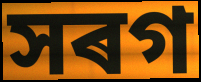
সৰগ